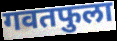
गवतफुला